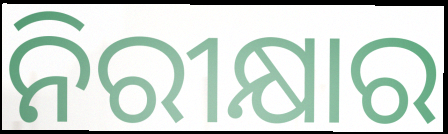
ନିରୀକ୍ଷାର